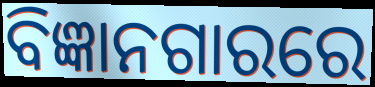
ବିଜ୍ଞାନଗାରରେ